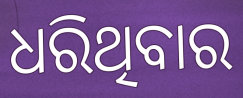
ଧରିଥିବାର